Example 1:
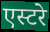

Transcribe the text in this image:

एस्टरे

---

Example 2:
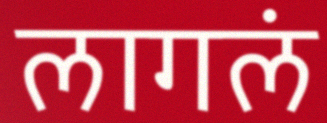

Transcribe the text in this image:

लागलं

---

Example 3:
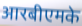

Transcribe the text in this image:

आरबीएमके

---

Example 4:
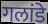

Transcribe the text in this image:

गलांडे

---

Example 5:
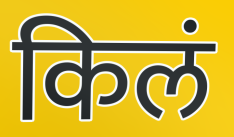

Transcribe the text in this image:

किलं